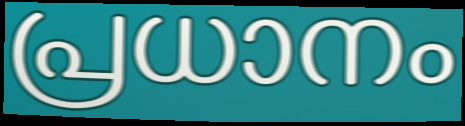
പ്രധാനം